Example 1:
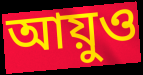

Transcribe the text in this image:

আয়ুও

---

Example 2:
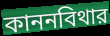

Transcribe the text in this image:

কাননবিথার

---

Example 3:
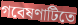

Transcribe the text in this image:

গবেষণাটিতে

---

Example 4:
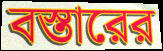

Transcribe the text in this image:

বস্তারের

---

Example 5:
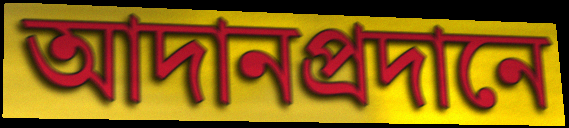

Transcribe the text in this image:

আদানপ্রদানে